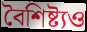
বৈশিষ্ট্যও